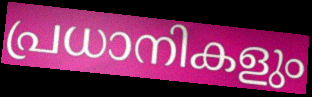
പ്രധാനികളും